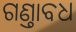
ଗଣ୍ତାବଧ